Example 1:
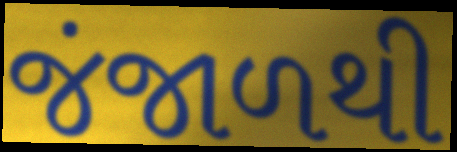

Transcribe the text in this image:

જંજાળથી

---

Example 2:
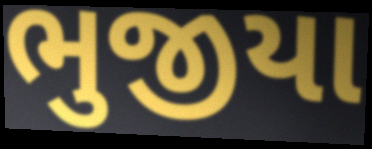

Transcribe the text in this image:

ભુજીયા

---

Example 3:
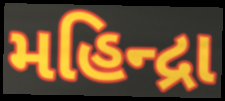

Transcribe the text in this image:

મહિન્દ્રા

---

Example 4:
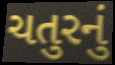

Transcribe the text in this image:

ચતુરનું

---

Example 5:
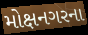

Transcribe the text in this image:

મોક્ષનગરના